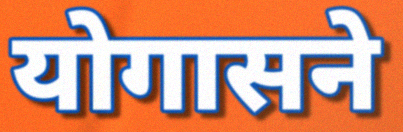
योगासने